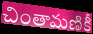
చింతామణికీ